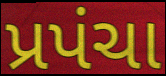
પ્રપંચા